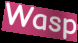
Wasp